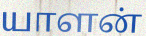
யாளன்